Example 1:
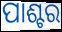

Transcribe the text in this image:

ପାଶ୍ଚର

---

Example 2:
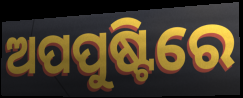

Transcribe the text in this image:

ଅପପୁଷ୍ଟିରେ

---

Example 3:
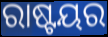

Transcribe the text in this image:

ରାଷ୍ଟୟର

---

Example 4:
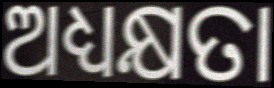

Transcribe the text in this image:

ଅଧ୍ୟକ୍ଷତା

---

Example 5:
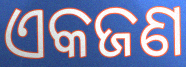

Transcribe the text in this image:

ଏକଜଣ